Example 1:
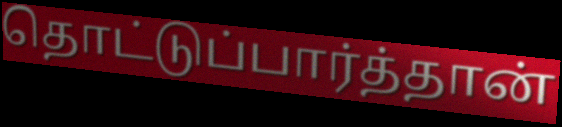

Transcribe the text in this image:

தொட்டுப்பார்த்தான்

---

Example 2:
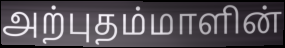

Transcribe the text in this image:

அற்புதம்மாளின்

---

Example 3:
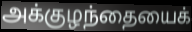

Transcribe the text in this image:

அக்குழந்தையைக்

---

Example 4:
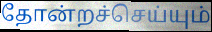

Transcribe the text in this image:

தோன்றச்செய்யும்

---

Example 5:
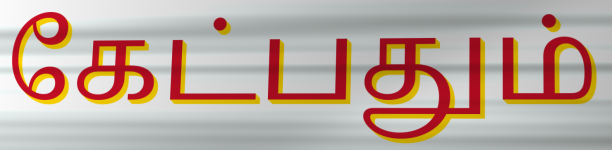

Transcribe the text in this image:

கேட்பதும்